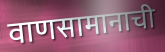
वाणसामानाची